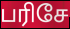
பரிசே